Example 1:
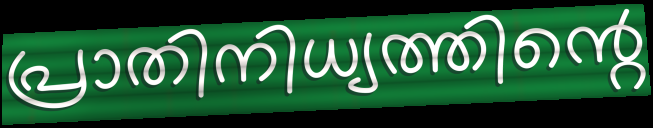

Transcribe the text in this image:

പ്രാതിനിധ്യത്തിന്റെ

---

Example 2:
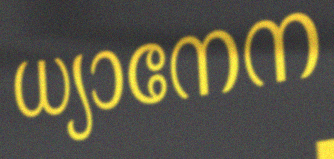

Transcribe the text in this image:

ധ്യാനേന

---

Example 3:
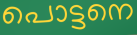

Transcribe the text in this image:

പൊട്ടനെ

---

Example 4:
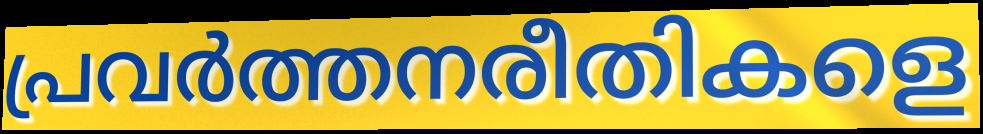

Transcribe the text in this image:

പ്രവർത്തനരീതികളെ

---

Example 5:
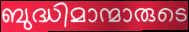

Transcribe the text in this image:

ബുദ്ധിമാന്മാരുടെ